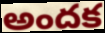
అందక